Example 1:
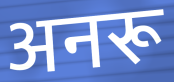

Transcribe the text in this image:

अनरू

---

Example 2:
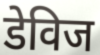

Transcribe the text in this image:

डेविज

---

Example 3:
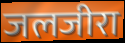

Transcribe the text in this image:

जलजीरा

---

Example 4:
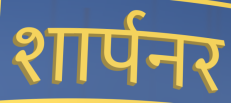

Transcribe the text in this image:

शार्पनर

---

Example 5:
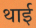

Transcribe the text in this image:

थाई